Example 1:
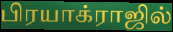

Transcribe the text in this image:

பிரயாக்ராஜில்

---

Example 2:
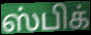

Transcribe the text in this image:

ஸ்பிக்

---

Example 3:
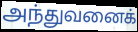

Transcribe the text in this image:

அந்துவனைக்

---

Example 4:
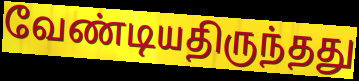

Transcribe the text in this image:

வேண்டியதிருந்தது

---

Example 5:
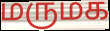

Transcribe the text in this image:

மருமக